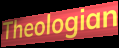
Theologian